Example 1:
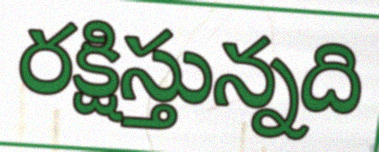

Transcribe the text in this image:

రక్షిస్తున్నది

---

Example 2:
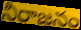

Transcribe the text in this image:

నీరాజనం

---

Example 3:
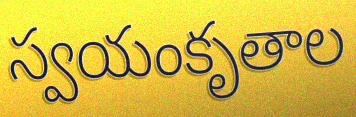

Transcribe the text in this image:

స్వయంకృతాల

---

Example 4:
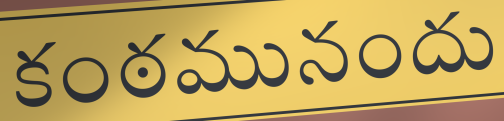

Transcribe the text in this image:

కంఠమునందు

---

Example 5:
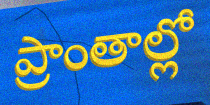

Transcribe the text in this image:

ప్రాంతాల్లో